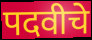
पदवीचे